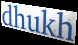
dhukh